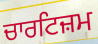
ਚਾਰਟਿਜ਼ਮ